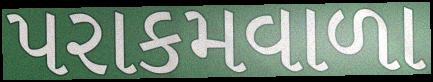
પરાકમવાળા